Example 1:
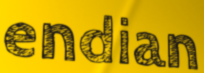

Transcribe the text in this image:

endian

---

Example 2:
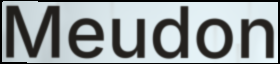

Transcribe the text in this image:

Meudon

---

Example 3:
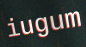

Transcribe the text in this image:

iugum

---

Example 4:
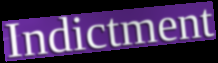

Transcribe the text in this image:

Indictment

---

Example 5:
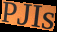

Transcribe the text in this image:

PJIs